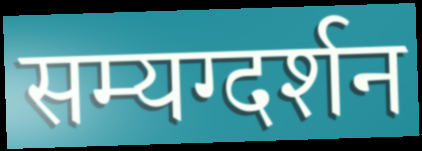
सम्यग्दर्शन